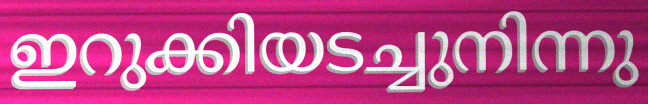
ഇറുക്കിയടച്ചുനിന്നു